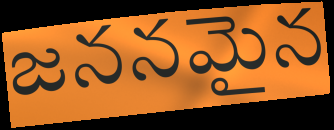
జననమైన